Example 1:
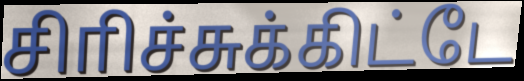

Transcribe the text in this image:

சிரிச்சுக்கிட்டே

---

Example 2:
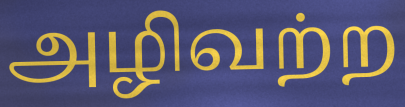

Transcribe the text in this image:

அழிவற்ற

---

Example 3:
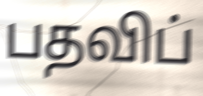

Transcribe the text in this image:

பதவிப்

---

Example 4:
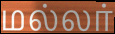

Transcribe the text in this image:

மல்லர்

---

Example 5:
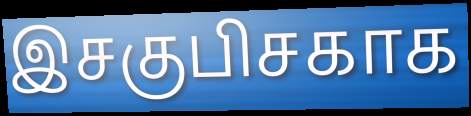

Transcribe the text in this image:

இசகுபிசகாக